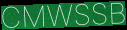
CMWSSB